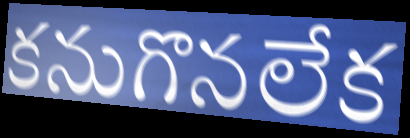
కనుగొనలేక